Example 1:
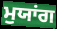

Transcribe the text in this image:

ਮੁਯਾਂਗ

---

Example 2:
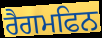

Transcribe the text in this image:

ਰੈਗਮਫਿਨ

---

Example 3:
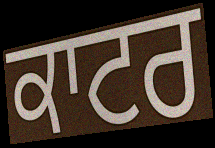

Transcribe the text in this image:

ਕਾਟਰ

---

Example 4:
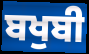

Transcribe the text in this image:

ਬਖੁਬੀ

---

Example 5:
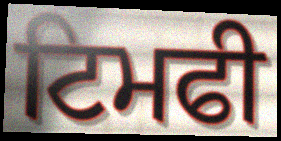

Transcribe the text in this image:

ਟਿਮਫੀ